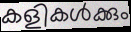
കളികൾക്കും